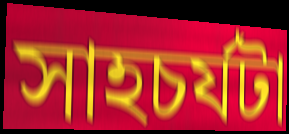
সাহচর্যটা